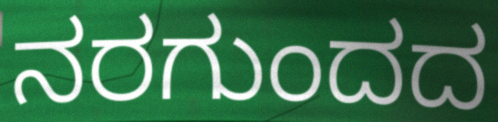
ನರಗುಂದದ